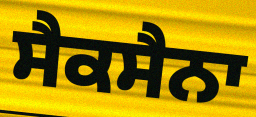
ਸੈਕਸੈਨਾ